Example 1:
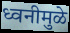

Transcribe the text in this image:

ध्वनीमुळे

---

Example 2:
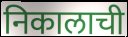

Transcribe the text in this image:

निकालाची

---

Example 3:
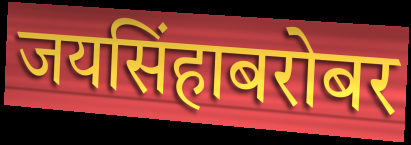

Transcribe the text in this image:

जयसिंहाबरोबर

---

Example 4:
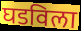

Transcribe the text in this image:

घडविला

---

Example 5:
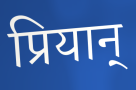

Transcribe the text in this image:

प्रियान्